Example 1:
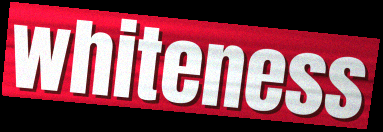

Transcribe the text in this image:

whiteness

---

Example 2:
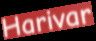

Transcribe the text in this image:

Harivar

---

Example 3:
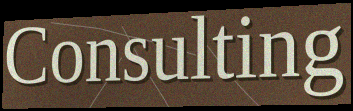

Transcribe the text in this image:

Consulting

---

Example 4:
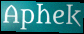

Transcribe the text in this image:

Aphek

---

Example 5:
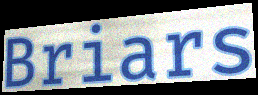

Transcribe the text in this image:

Briars